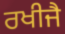
ਰਖੀਜੈ